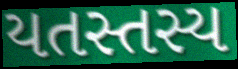
યતસ્તસ્ય